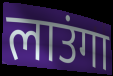
लाउंगा